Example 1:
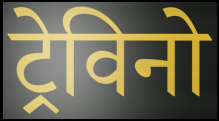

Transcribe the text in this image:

ट्रेविनो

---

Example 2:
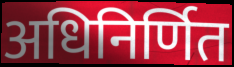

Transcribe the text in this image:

अधिनिर्णित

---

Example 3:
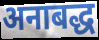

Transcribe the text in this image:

अनाबद्ध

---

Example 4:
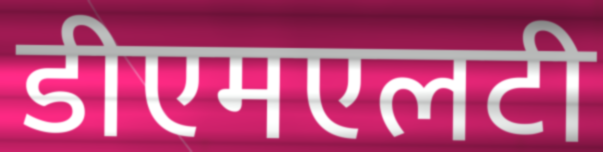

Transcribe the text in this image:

डीएमएलटी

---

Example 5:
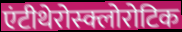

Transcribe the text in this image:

एंटीथेरोस्क्लोरोटिक